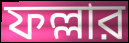
ফল্লার